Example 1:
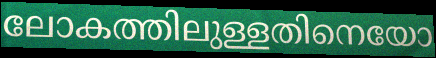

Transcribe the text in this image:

ലോകത്തിലുള്ളതിനെയോ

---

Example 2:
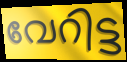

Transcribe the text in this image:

വേറിട്ട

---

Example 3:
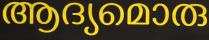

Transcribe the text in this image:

ആദ്യമൊരു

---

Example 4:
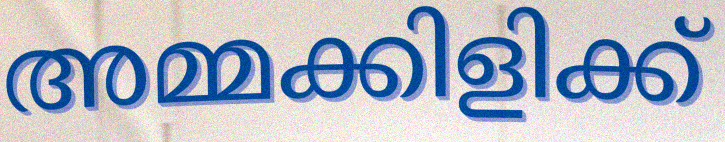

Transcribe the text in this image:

അമ്മക്കിളിക്ക്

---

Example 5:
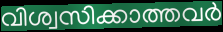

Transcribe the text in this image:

വിശ്വസിക്കാത്തവർ